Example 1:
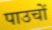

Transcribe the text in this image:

पाउचों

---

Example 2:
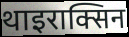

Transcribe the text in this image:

थाइराक्सिन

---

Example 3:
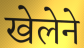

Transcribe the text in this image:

खेलेने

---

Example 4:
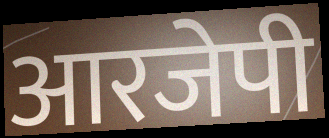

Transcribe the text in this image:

आरजेपी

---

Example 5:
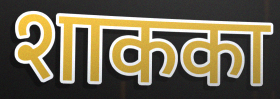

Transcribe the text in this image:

शाकका